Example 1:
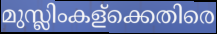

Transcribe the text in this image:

മുസ്ലിംകള്ക്കെതിരെ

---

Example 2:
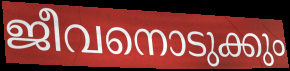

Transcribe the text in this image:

ജീവനൊടുക്കും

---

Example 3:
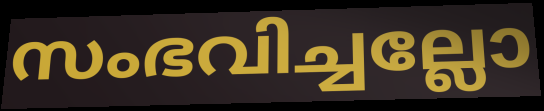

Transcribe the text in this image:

സംഭവിച്ചല്ലോ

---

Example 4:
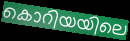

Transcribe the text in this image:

കൊറിയയിലെ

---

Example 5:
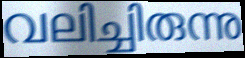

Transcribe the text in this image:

വലിച്ചിരുന്നു